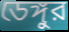
ডেঙ্গুর